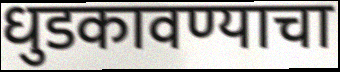
धुडकावण्याचा